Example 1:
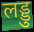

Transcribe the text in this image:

लड्डु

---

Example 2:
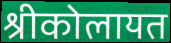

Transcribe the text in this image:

श्रीकोलायत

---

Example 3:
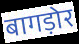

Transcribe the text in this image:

बागड़ोर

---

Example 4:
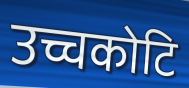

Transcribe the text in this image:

उच्चकोटि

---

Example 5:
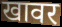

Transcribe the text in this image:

खावर